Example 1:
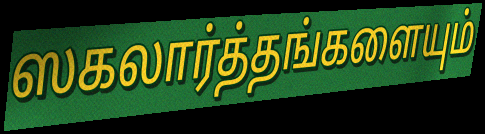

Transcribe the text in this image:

ஸகலார்த்தங்களையும்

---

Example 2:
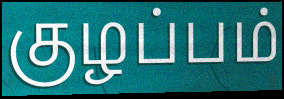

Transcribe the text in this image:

குழப்பம்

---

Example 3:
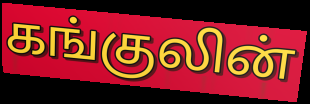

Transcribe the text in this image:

கங்குலின்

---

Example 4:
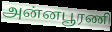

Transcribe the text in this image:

அன்னபூரணி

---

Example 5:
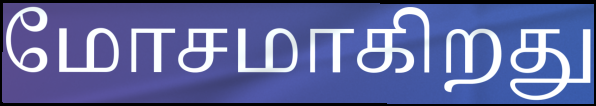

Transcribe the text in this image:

மோசமாகிறது